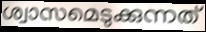
ശ്വാസമെടുക്കുന്നത്